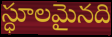
స్ధూలమైనది